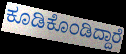
ಕೂಡಿಕೊಂಡಿದ್ದಾರೆ